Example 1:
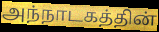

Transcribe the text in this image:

அந்நாடகத்தின்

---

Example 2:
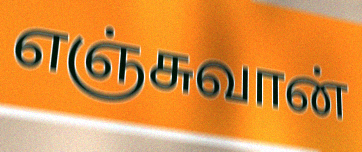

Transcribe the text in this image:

எஞ்சுவான்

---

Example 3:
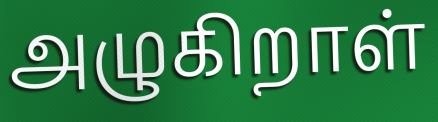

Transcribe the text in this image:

அழுகிறாள்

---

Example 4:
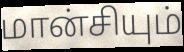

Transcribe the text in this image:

மான்சியும்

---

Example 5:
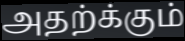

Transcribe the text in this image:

அதற்க்கும்